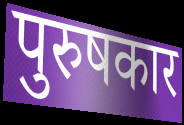
पुरुषकार